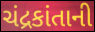
ચંદ્રકાંતાની